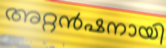
അറ്റൻഷനായി